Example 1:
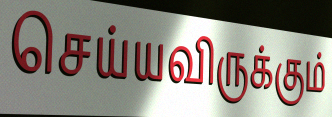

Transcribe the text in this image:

செய்யவிருக்கும்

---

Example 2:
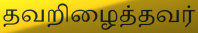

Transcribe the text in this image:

தவறிழைத்தவர்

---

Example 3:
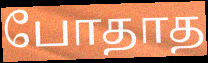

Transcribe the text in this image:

போதாத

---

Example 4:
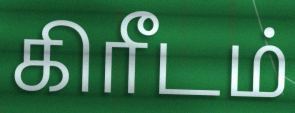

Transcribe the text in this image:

கிரீடம்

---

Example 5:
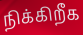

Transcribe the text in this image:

நிக்கிறீக